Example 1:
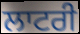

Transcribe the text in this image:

ਲਾਟਰੀ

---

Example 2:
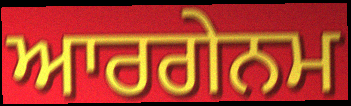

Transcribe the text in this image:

ਆਰਗੇਨਮ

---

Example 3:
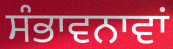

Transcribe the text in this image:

ਸੰਭਾਵਨਾਵਾਂ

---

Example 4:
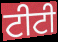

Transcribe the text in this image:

ਟੀਟੀ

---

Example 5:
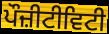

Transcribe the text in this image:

ਪੌਜ਼ੀਟੀਵਿਟੀ